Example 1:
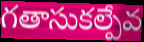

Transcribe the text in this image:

గతాసుకల్పేవ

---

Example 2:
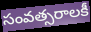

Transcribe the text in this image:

సంవత్సరాలకీ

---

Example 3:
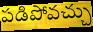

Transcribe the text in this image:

పడిపోవచ్చు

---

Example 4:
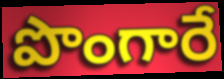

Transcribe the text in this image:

పొంగారే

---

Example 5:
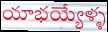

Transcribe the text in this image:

యాభయ్యేళ్ళ